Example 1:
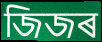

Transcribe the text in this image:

জিজৰ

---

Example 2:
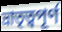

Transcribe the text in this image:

ভ্ৰাতৃত্বপূৰ্ণ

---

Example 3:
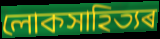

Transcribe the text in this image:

লোকসাহিত্যৰ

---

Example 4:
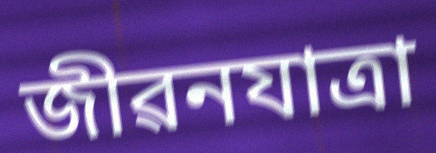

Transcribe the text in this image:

জীৱনযাত্ৰা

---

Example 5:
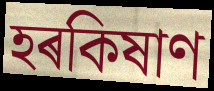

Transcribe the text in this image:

হৰকিষাণ